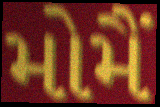
મોમૈં